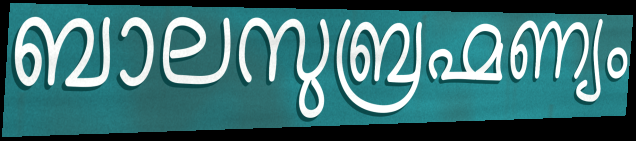
ബാലസുബ്രഹ്മണ്യം